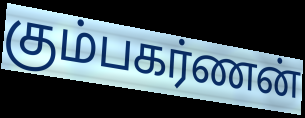
கும்பகர்ணன்